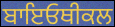
ਬਾਇਓਥੀਕਲ